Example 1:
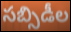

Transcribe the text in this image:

సబ్సిడీల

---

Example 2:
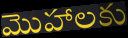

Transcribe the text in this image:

మొహాలకు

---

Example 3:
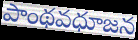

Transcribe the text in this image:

పాంథవధూజన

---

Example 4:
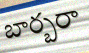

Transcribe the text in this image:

బార్బరా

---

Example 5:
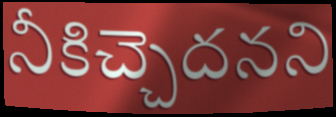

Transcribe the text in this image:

నీకిచ్చెదనని